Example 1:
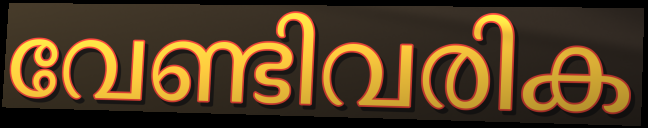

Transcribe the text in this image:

വേണ്ടിവരിക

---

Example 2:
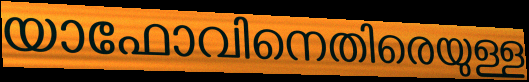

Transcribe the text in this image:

യാഫോവിനെതിരെയുള്ള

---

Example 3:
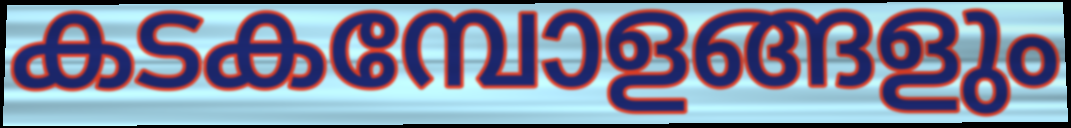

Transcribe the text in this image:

കടകമ്പോളങ്ങളും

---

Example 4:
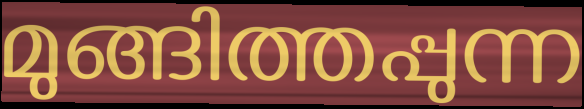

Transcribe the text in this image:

മുങ്ങിത്തപ്പുന്ന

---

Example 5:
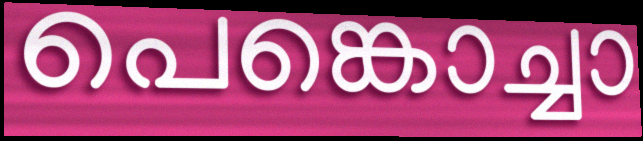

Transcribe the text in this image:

പെങ്കൊച്ചാ